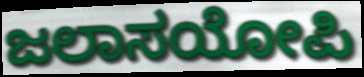
ಜಲಾಸಯೋಪಿ